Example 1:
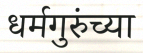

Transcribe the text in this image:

धर्मगुरुंच्या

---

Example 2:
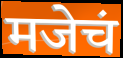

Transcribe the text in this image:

मजेचं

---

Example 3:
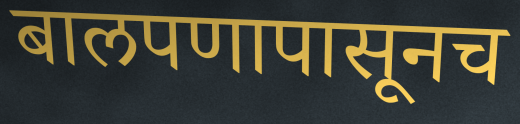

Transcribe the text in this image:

बालपणापासूनच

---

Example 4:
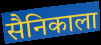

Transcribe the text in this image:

सैनिकाला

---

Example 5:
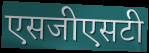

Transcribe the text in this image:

एसजीएसटी